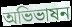
অভিভাষন